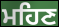
ਮਹਿਣ